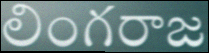
లింగరాజ